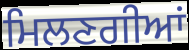
ਮਿਲਣਗੀਆਂ